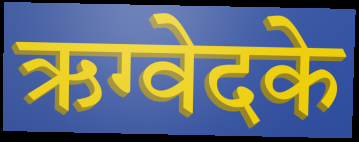
ऋग्वेदके